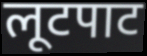
लूटपाट